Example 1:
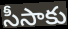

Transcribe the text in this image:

సీసాకు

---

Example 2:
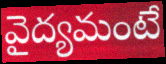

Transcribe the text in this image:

వైద్యమంటే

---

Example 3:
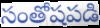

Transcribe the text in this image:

సంతోషపడి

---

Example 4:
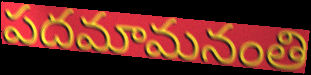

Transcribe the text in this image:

పదమామనంతి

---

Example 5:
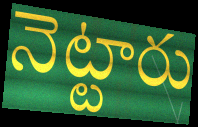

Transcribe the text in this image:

నెట్టారు